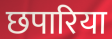
छपारिया